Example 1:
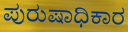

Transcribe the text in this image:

ಪುರುಷಾಧಿಕಾರ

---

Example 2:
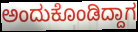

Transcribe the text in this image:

ಅಂದುಕೊಂಡಿದ್ದಾಗ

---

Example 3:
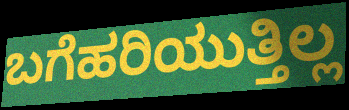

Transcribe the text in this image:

ಬಗೆಹರಿಯುತ್ತಿಲ್ಲ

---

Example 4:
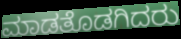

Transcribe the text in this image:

ಮಾಡತೊಡಗಿದರು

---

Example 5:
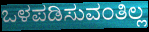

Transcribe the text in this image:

ಒಳಪಡಿಸುವಂತಿಲ್ಲ